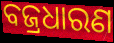
ବଜ୍ରଧାରଣ